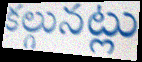
కల్గునట్లు